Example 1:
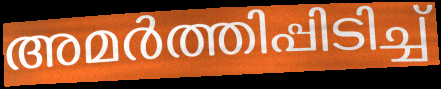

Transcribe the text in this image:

അമർത്തിപ്പിടിച്ച്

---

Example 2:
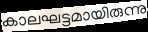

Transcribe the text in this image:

കാലഘട്ടമായിരുന്നു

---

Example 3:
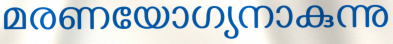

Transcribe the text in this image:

മരണയോഗ്യനാകുന്നു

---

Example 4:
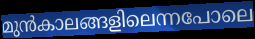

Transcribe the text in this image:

മുൻകാലങ്ങളിലെന്നപോലെ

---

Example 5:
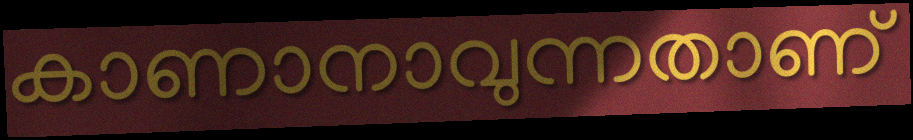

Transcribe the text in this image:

കാണാനാവുന്നതാണ്